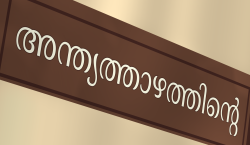
അന്ത്യത്താഴത്തിന്റെ